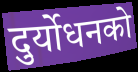
दुर्योधनको